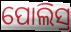
ପୋଲିସ୍ର